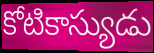
కోటికాస్యుడు